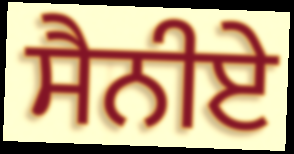
ਸੈਨੀਏ